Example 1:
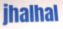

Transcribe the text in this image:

jhalhal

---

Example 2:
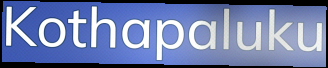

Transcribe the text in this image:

Kothapaluku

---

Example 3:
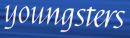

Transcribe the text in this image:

youngsters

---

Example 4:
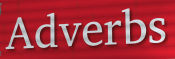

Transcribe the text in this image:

Adverbs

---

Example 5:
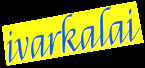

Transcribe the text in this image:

ivarkalai